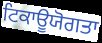
ਟਿਕਾਊਯੋਗਤਾ